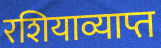
रशियाव्याप्त